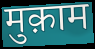
मुक़ाम